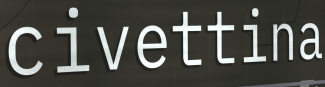
civettina